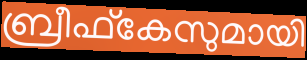
ബ്രീഫ്കേസുമായി